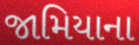
જામિયાના